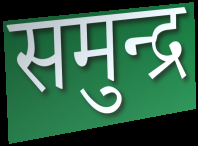
समुन्द्र